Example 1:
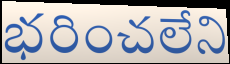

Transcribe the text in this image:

భరించలేని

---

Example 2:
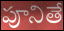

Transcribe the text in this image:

పూనితే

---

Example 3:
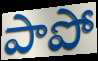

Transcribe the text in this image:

పాపో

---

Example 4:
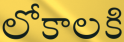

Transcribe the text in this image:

లోకాలకి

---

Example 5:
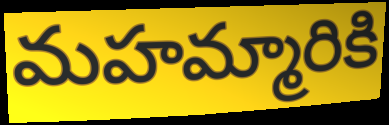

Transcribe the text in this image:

మహమ్మారికి